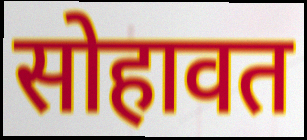
सोहावत